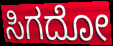
ಸಿಗದೋ